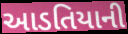
આડતિયાની